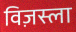
विज़स्ला